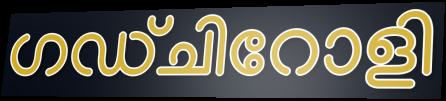
ഗഡ്ചിറോളി